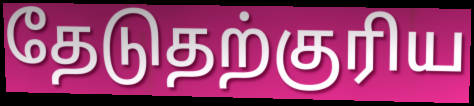
தேடுதற்குரிய